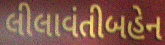
લીલાવંતીબહેન